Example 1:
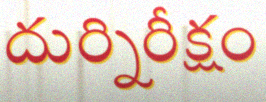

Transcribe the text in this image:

దుర్నిరీక్షం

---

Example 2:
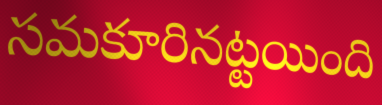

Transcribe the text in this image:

సమకూరినట్టయింది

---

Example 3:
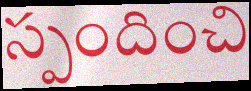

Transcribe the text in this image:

స్పందించి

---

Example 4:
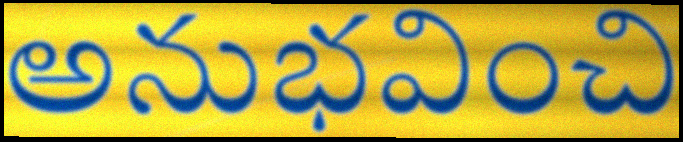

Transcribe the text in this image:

అనుభవించి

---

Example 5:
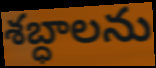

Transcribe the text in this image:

శబ్ధాలను